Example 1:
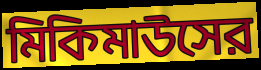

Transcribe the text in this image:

মিকিমাউসের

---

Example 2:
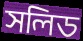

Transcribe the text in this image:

সলিড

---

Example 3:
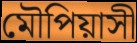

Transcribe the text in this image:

মৌপিয়াসী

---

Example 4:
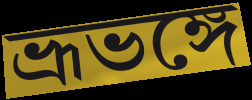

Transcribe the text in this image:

ভ্রূভঙ্গে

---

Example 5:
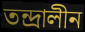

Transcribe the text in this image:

তন্দ্রালীন